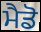
ਮੈਡੋ